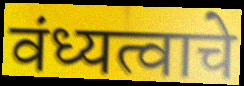
वंध्यत्वाचे